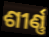
ଶୀର୍ଣ୍ଣ